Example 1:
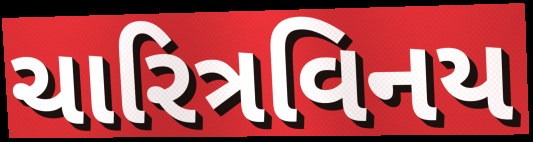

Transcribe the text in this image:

ચારિત્રવિનય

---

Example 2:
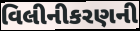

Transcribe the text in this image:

વિલીનીકરણની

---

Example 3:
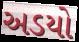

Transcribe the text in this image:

અડયો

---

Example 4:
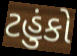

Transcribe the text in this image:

ટહુંકો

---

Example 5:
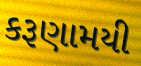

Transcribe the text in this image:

કરૂણામયી